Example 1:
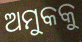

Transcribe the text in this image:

ଅମୁକକୁ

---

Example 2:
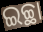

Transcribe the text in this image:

ଇଚ୍ଛା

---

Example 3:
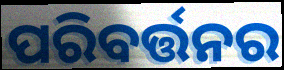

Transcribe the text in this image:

ପରିବର୍ତ୍ତନର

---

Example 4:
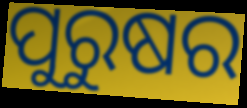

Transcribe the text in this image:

ପୁରୁଷର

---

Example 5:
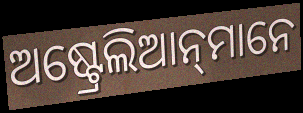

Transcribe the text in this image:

ଅଷ୍ଟ୍ରେଲିଆନ୍‌ମାନେ